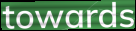
towards